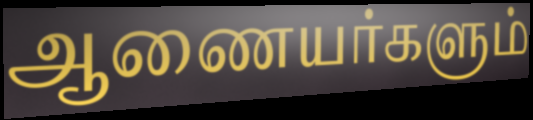
ஆணையர்களும்